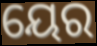
ୟେର